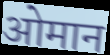
ओमान